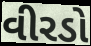
વીરડો